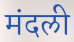
मंदली